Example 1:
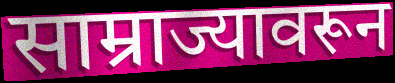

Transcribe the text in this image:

साम्राज्यावरून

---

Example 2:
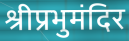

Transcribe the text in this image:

श्रीप्रभुमंदिर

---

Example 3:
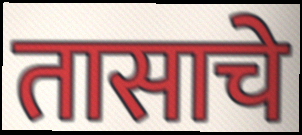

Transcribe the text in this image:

तासाचे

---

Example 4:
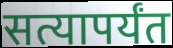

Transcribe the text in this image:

सत्यापर्यंत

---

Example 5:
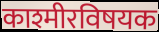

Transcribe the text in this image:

काश्मीरविषयक